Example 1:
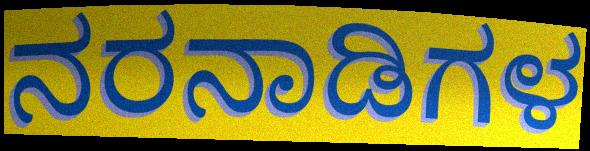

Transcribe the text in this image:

ನರನಾಡಿಗಳ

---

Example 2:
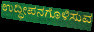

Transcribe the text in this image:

ಉದ್ಧೀಪನಗೊಳಿಸುವ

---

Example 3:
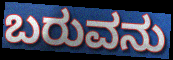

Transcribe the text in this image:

ಬರುವನು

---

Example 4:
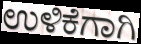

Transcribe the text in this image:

ಉಳಿಕೆಗಾಗಿ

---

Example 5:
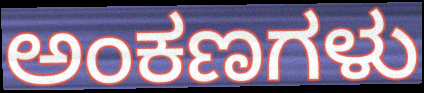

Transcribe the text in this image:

ಅಂಕಣಗಳು